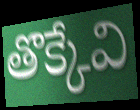
తొక్కేవి